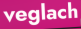
veglach